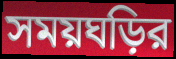
সময়ঘড়ির